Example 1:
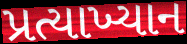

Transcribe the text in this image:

પ્રત્યાખ્યાન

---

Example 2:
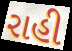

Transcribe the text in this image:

રાહી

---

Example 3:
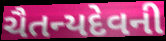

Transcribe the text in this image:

ચૈતન્યદેવની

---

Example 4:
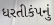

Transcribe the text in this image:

ધરતીકંપનું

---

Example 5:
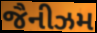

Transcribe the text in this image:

જૈનીઝમ